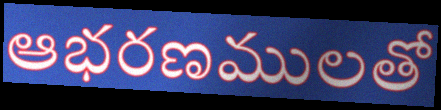
ఆభరణములతో